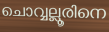
ചൊവ്വല്ലൂരിനെ